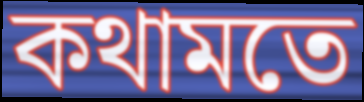
কথামতে